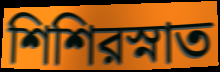
শিশিরস্নাত